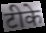
टीके